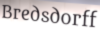
Bredsdorff